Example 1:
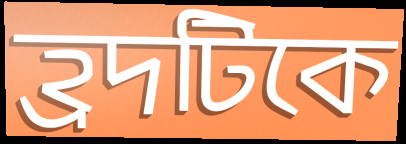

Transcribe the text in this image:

হ্রদটিকে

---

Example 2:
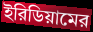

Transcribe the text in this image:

ইরিডিয়ামের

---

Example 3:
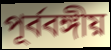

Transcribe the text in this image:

পূর্ববঙ্গীয়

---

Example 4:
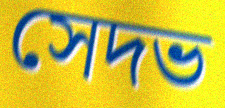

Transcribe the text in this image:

সেদভ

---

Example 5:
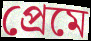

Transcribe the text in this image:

প্রেমে